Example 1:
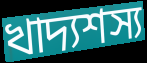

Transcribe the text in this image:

খাদ্যশস্য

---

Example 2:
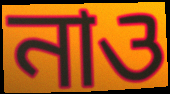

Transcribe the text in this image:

নাও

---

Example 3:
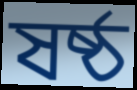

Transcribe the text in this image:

ষষ্ঠ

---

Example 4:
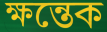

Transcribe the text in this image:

ক্ষন্তেক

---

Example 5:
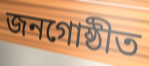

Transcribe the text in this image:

জনগোষ্ঠীত